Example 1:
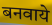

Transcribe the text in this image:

बनवाये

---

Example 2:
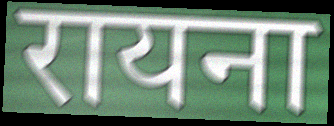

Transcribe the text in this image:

रायना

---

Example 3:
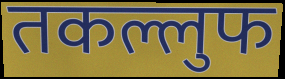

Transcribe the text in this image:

तकल्लुफ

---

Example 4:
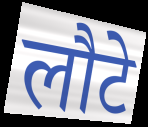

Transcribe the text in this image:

लौटे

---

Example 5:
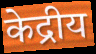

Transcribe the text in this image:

केद्रीय